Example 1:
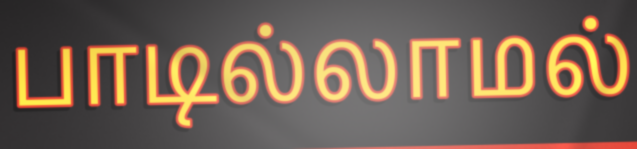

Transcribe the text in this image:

பாடில்லாமல்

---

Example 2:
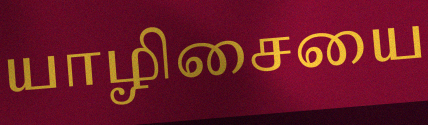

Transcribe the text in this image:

யாழிசையை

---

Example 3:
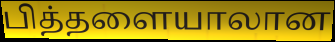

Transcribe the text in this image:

பித்தளையாலான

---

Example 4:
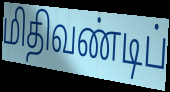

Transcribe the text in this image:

மிதிவண்டிப்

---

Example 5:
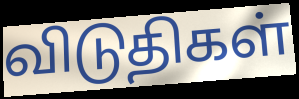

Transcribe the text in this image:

விடுதிகள்